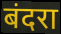
बंदरा